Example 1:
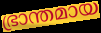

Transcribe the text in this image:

ഭ്രാന്തമായ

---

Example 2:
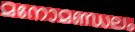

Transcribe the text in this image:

മനോമണ്ഡലം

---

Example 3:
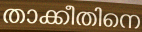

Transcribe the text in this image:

താക്കീതിനെ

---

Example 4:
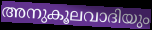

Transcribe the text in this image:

അനുകൂലവാദിയും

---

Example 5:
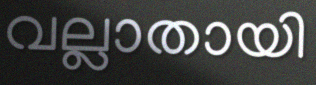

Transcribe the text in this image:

വല്ലാതായി